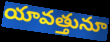
యావత్తునూ